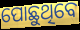
ପୋଛୁଥିବେ